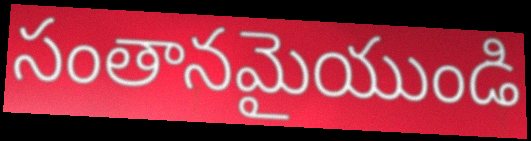
సంతానమైయుండి